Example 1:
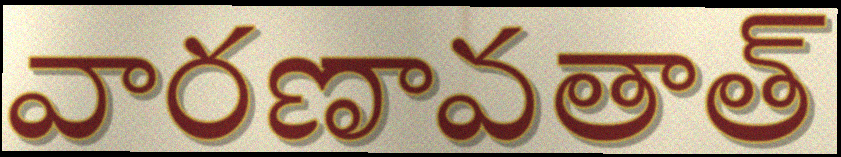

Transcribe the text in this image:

వారణావతాత్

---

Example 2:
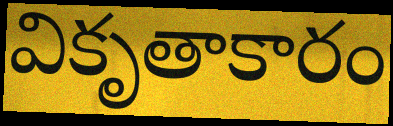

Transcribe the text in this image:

వికృతాకారం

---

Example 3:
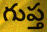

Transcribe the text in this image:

గుప్త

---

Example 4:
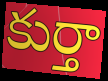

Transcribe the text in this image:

కుర్తా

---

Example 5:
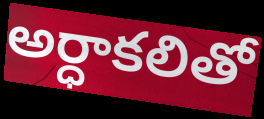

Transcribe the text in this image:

అర్ధాకలితో